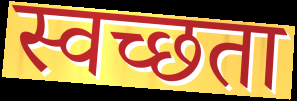
स्वच्छता